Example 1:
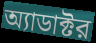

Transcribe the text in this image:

অ্যাডাক্টর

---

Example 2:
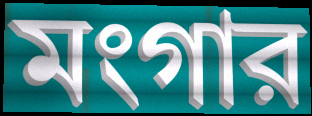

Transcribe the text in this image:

মংগার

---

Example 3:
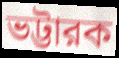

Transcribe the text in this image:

ভট্টারক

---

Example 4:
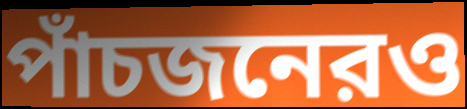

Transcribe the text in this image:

পাঁচজনেরও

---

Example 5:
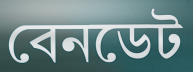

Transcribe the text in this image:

বেনডেট